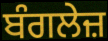
ਬੰਗਲੇਜ਼